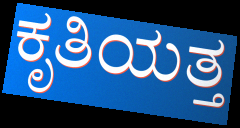
ಕೃತಿಯತ್ತ